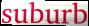
suburb